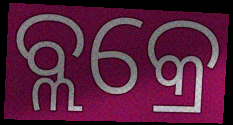
ବ୍ଲକ୍ରେ